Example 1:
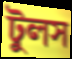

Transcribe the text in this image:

টুলস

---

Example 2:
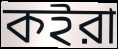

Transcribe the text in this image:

কইরা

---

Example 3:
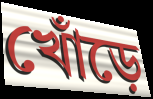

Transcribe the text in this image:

খোঁড়ে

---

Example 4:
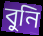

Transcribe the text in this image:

বুনি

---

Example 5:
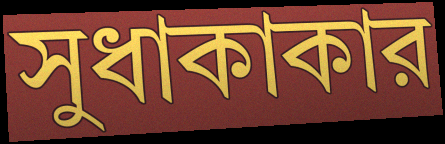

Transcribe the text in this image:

সুধাকাকার